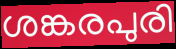
ശങ്കരപുരി